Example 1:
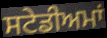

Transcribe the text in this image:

ਸਟੇਡੀਅਮਾਂ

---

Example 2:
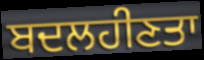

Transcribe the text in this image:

ਬਦਲਹੀਣਤਾ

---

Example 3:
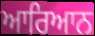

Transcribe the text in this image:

ਆਰਿਆਨ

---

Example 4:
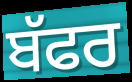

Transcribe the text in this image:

ਬੱਫਰ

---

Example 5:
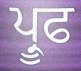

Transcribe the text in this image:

ਪ੍ਰੂਫ